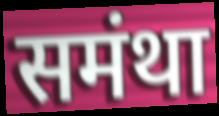
समंथा